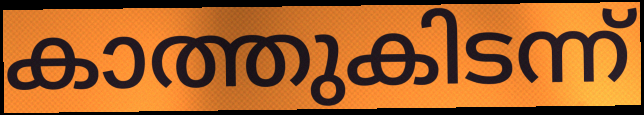
കാത്തുകിടന്ന്